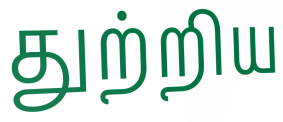
துற்றிய